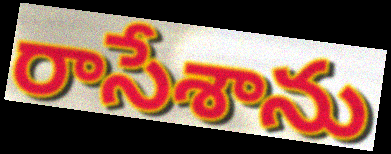
రాసేశాను